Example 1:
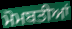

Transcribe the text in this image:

ਮੋਮਬਤੀਆਂ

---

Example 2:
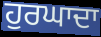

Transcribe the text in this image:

ਹੁਰਘਾਦਾ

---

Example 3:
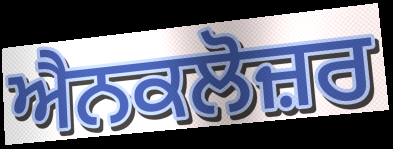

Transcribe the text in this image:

ਐਨਕਲੋਜ਼ਰ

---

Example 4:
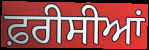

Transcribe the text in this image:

ਫ਼ਰੀਸੀਆਂ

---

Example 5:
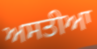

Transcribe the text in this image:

ਅਸਤੀਆ